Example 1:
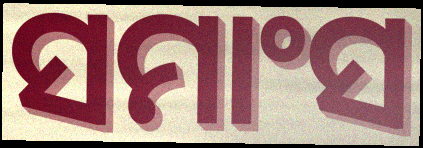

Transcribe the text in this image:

ସମାଂସ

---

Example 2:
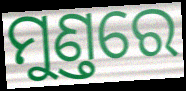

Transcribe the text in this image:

ମୁଣ୍ତରେ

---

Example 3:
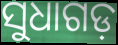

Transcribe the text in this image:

ସୁଧାଗଡ଼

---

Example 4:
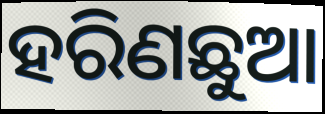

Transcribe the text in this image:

ହରିଣଛୁଆ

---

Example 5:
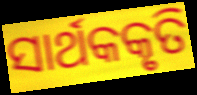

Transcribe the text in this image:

ସାର୍ଥକକୃତି